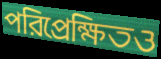
পরিপ্রেক্ষিতও